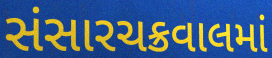
સંસારચક્રવાલમાં